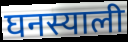
घनस्याली